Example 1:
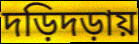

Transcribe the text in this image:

দড়িদড়ায়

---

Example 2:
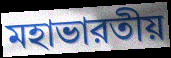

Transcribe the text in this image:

মহাভারতীয়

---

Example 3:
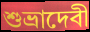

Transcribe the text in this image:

শুভ্রাদেবী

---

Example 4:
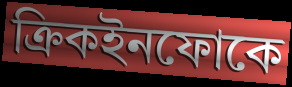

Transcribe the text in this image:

ক্রিকইনফোকে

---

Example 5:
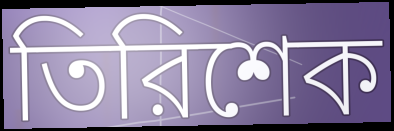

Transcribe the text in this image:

তিরিশেক